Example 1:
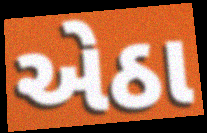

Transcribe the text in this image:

એઠા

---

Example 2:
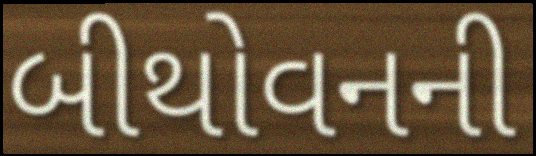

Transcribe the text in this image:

બીથોવનની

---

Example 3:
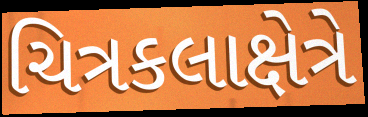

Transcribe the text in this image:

ચિત્રકલાક્ષેત્રે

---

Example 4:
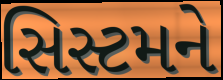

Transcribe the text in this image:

સિસ્ટમને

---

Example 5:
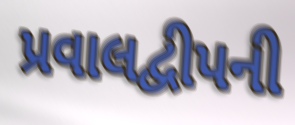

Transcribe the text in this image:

પ્રવાલદ્વીપની